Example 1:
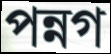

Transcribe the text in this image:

পন্নগ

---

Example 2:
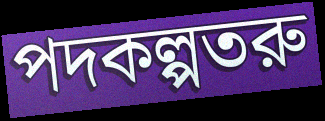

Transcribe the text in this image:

পদকল্পতরু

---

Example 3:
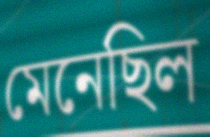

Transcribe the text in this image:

মেনেছিল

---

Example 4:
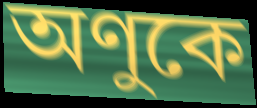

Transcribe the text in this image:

অণুকে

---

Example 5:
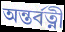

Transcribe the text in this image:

অন্তর্বত্নী